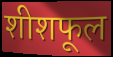
शीशफूल